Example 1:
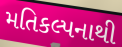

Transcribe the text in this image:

મતિકલ્પનાથી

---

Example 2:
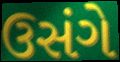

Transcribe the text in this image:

ઉસંગે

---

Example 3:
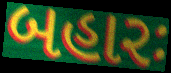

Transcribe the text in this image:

બહારઃ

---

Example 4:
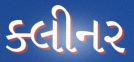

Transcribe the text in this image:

ક્લીનર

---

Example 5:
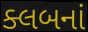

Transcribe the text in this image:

ક્લબનાં